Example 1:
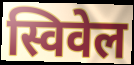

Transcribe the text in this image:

स्विवेल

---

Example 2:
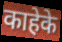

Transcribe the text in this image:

काहेके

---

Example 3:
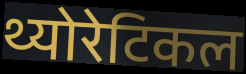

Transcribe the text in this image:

थ्योरेटिकल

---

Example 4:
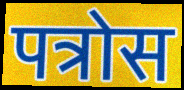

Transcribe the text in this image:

पत्रोस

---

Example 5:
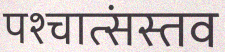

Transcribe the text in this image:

पश्चात्संस्तव